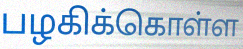
பழகிக்கொள்ள